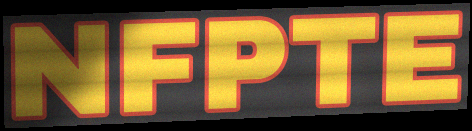
NFPTE